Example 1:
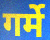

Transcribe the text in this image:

गर्मे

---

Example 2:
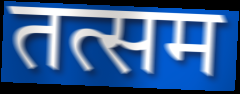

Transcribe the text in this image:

तत्सम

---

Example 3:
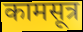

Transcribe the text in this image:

कामसूत्र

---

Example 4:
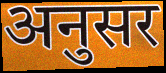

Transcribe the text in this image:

अनुसर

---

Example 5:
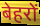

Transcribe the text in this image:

बेहरों